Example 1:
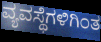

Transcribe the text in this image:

ವ್ಯವಸ್ಥೆಗಳಿಗಿಂತ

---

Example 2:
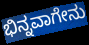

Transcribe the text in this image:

ಭಿನ್ನವಾಗೇನು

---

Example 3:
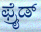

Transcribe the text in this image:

ಫ್ರೈಡ್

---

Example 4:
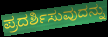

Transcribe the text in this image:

ಪ್ರದರ್ಶಿಸುವುದನ್ನು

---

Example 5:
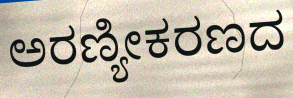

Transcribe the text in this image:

ಅರಣ್ಯೀಕರಣದ